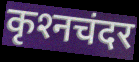
कृश्नचंदर